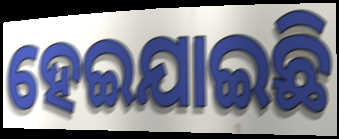
ହେଇଯାଇଛି